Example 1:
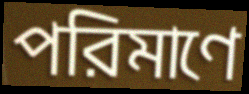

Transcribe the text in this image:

পরিমাণে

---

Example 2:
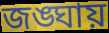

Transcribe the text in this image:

জঙ্ঘায়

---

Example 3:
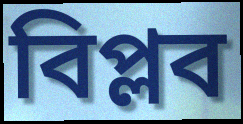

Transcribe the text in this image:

বিপ্লব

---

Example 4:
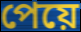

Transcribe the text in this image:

পেয়ে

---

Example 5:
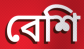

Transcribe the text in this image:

বেশি